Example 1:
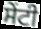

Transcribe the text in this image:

ਸੇਂਟੀ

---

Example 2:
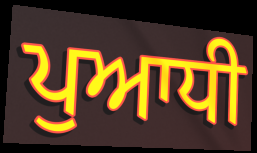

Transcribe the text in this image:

ਪੁਆਧੀ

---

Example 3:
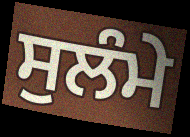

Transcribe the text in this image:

ਸੁਲੰਮੇ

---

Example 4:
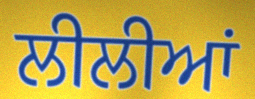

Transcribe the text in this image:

ਲੀਲੀਆਂ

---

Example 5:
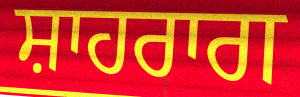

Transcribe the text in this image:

ਸ਼ਾਹਰਾਗ